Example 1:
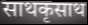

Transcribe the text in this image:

साथकृसाथ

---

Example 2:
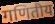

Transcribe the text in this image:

गणितीय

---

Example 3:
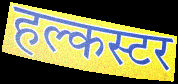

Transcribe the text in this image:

हल्कस्टर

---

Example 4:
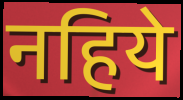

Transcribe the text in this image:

नहिये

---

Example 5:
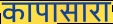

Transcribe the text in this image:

कापासारा